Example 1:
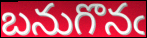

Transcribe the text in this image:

బనుగొనఁ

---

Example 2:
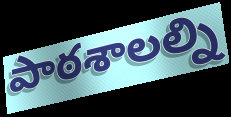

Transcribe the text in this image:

పాఠశాలల్ని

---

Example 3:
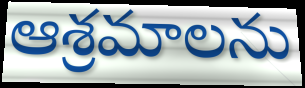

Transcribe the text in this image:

ఆశ్రమాలను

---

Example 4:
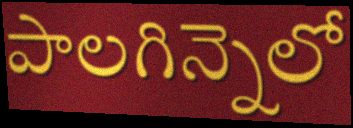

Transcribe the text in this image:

పాలగిన్నెలో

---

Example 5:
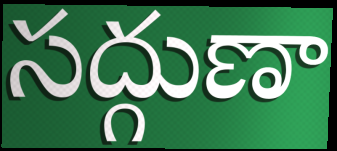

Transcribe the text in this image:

సద్గుణా